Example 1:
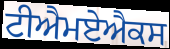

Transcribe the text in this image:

ਟੀਐਮਏਐਕਸ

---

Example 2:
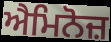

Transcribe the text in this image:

ਐਮਿਨੋਜ਼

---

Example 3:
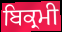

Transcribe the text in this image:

ਬਿਕ੍ਰਮੀ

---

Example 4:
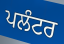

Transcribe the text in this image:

ਪਲੰਟਰ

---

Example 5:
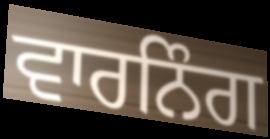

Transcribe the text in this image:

ਵਾਰਨਿੰਗ